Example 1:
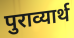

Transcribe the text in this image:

पुराव्यार्थ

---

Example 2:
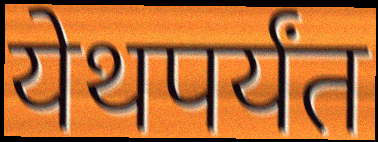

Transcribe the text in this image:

येथपर्यंत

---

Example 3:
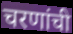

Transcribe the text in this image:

चरणांची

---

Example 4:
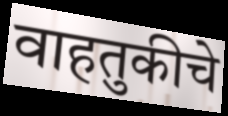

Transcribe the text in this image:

वाहतुकीचे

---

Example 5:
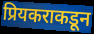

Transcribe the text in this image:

प्रियकराकडून